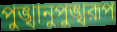
পুঙ্খানুপুঙ্খরূপ